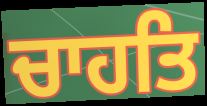
ਚਾਹਤਿ